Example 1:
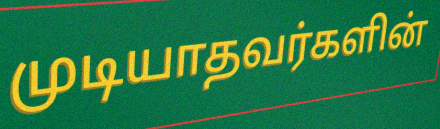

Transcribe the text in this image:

முடியாதவர்களின்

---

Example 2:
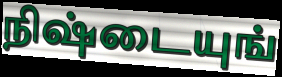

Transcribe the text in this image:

நிஷ்டையுங்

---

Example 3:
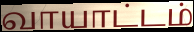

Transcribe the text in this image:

வாயாட்டம்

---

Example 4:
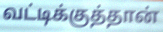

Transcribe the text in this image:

வட்டிக்குத்தான்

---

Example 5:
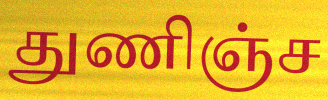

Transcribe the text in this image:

துணிஞ்ச